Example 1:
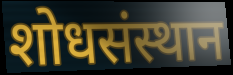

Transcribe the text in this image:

शोधसंस्थान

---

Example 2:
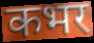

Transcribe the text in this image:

कभर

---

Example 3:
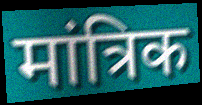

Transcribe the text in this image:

मांत्रिक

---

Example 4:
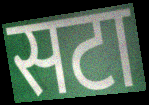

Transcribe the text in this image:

सटा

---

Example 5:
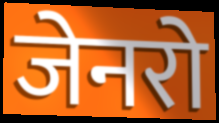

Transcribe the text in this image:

जेनरो